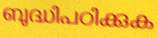
ബുദ്ധിപഠിക്കുക